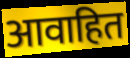
आवाहित